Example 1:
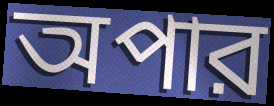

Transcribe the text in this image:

অপার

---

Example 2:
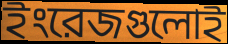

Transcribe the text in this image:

ইংরেজগুলোই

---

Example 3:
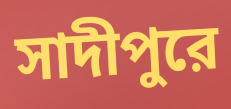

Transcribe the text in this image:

সাদীপুরে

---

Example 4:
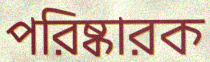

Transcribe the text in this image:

পরিষ্কারক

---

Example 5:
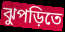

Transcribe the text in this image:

ঝুপড়িতে